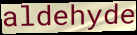
aldehyde